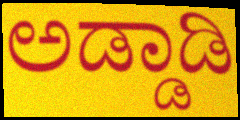
ಅಡ್ಡಾಡಿ